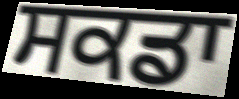
ਸਕਡਾ